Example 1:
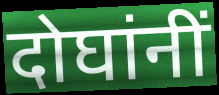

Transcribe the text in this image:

दोघांनीं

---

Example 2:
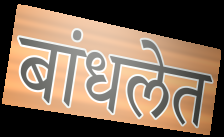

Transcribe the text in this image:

बांधलेत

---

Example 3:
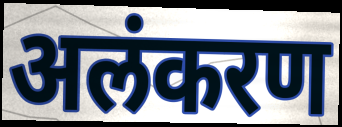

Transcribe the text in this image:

अलंकरण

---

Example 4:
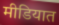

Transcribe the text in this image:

मीडियात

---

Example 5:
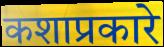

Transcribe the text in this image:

कशाप्रकारे